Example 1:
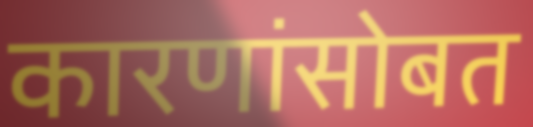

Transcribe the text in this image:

कारणांसोबत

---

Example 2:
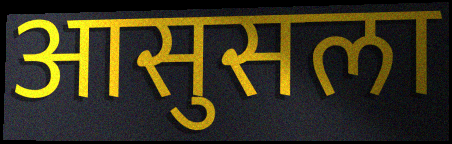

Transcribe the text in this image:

आसुसला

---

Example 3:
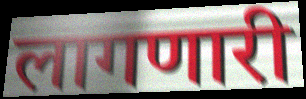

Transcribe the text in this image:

लागणारी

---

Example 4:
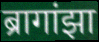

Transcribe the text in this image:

ब्रागांझा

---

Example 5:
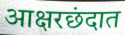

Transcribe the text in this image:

आक्षरछंदात